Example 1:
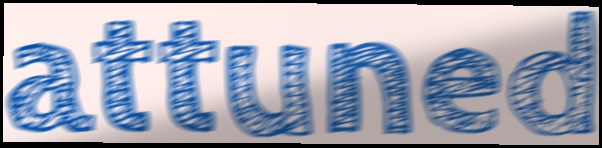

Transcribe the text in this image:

attuned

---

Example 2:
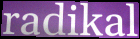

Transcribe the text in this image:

radikal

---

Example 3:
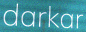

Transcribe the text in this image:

darkar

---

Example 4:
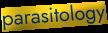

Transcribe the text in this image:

parasitology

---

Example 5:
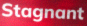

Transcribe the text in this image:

Stagnant